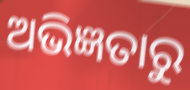
ଅଭିଜ୍ଞତାରୁ